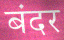
बंदर